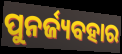
ପୁନର୍ଜ୍ୟବହାର